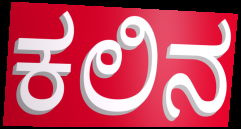
ಕಲಿನ